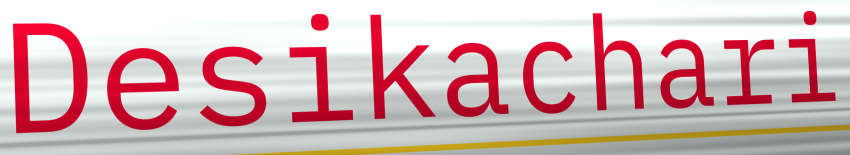
Desikachari